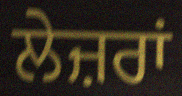
ਲੇਜ਼ਰਾਂ